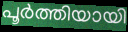
പൂർത്തിയായി